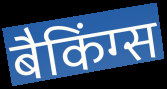
बैकिंग्स